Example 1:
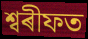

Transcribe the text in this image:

শ্বৰীফত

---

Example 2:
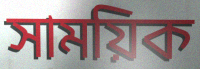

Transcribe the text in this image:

সাময়িক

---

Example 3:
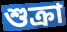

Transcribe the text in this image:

শুক্ৰা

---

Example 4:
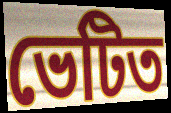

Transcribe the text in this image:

ভেটিত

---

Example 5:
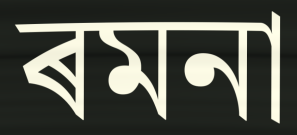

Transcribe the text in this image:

ৰমনা